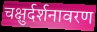
चक्षुर्दर्शनावरण